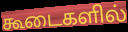
கூடைகளில்